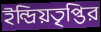
ইন্দ্রিয়তৃপ্তির